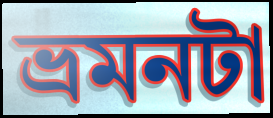
ভ্রমনটা